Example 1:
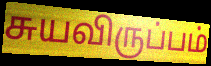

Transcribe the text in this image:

சுயவிருப்பம்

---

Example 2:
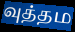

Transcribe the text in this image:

வுத்தம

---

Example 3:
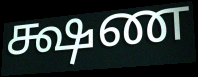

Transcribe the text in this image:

க்ஷண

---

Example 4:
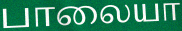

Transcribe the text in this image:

பாலையா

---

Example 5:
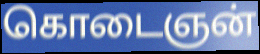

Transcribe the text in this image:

கொடைஞன்